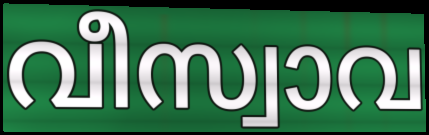
വീസ്വാവ